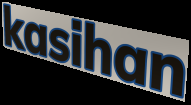
kasihan